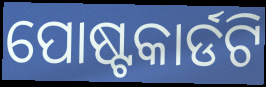
ପୋଷ୍ଟକାର୍ଡଟି